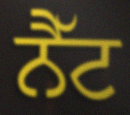
ਨੈੱਟ